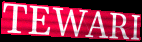
TEWARI